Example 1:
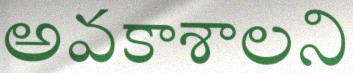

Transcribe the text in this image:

అవకాశాలని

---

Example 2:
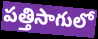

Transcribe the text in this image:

పత్తిసాగులో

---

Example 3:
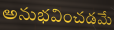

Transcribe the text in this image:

అనుభవించడమే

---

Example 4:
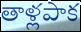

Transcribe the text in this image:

తాళ్లపాక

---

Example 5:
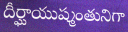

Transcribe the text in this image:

దీర్ఘాయుష్మంతునిగా